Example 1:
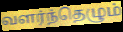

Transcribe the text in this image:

வளர்ந்தெழும்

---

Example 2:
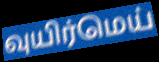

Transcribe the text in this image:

வுயிர்மெய்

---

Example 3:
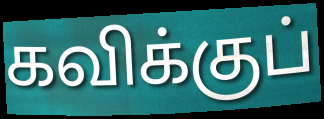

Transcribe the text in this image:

கவிக்குப்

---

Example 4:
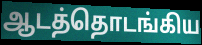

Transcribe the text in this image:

ஆடத்தொடங்கிய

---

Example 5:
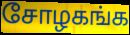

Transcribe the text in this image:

சோழகங்க